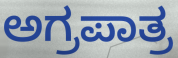
ಅಗ್ರಪಾತ್ರ